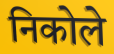
निकोले